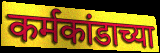
कर्मकांडाच्या